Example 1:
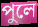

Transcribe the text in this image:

পুলে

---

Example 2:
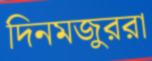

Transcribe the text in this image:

দিনমজুররা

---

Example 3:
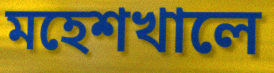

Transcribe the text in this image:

মহেশখালে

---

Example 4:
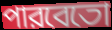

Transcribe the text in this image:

পারবেতো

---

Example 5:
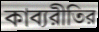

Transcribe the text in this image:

কাব্যরীতির